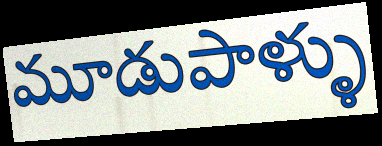
మూడుపాళ్ళు